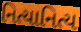
નિત્યાનિત્ય